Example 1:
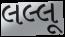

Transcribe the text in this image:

લલ્લૂ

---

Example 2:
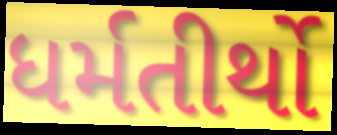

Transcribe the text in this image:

ધર્મતીર્થો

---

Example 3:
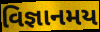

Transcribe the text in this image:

વિજ્ઞાનમય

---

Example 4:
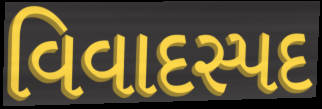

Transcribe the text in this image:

વિવાદસ્પદ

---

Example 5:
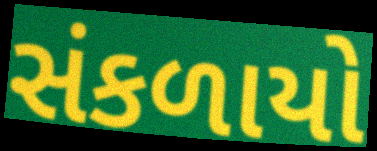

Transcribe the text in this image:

સંકળાયો